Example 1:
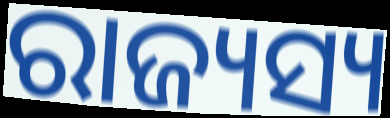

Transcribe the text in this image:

ରାଜ୍ୟସ୍ୟ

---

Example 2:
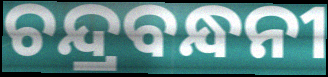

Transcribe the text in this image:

ଚନ୍ଦ୍ରବନ୍ଧନୀ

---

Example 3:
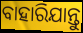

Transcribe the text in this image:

ବାହାରିଯାନ୍ତୁ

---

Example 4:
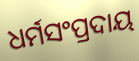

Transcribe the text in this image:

ଧର୍ମସଂପ୍ରଦାୟ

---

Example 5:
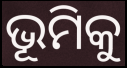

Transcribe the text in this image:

ଭୂମିକୁ